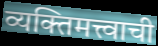
व्यक्तिमत्त्वाची